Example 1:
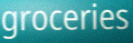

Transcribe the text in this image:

groceries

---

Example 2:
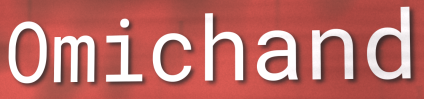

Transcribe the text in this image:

Omichand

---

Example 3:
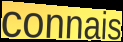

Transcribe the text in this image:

connais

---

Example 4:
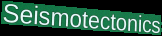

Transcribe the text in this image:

Seismotectonics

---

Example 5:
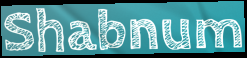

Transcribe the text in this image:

Shabnum